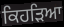
ਕਿਹੜਿਆ